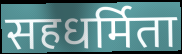
सहधर्मिता